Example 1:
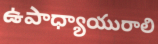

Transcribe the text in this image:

ఉపాధ్యాయురాలి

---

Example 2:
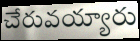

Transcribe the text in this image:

చేరువయ్యారు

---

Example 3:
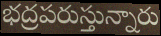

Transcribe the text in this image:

భద్రపరుస్తున్నారు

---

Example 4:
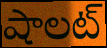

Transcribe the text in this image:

షాలట్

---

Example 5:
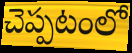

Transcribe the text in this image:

చెప్పటంలో